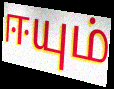
ஈயும்